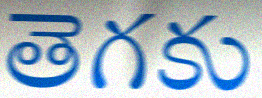
తెగకు